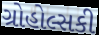
ગ્રોહોલ્સકી